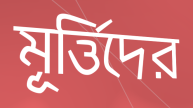
মূর্ত্তিদের